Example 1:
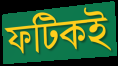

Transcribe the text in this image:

ফটিকই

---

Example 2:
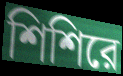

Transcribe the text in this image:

শিশিরে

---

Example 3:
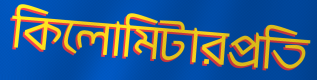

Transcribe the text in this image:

কিলোমিটারপ্রতি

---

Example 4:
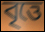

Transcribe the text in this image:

বৃত্তে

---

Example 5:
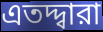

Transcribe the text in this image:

এতদ্দ্বারা